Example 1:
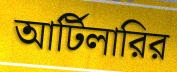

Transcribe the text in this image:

আর্টিলারির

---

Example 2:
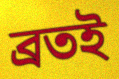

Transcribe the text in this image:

ব্রতই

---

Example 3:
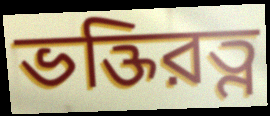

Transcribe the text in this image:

ভক্তিরত্ন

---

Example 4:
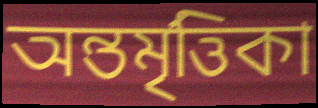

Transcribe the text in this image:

অন্তর্মৃত্তিকা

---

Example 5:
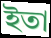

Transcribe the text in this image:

ইতা